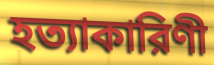
হত্যাকারিণী